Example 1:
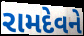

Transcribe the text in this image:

રામદેવને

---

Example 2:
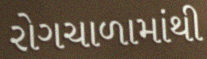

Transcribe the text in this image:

રોગચાળામાંથી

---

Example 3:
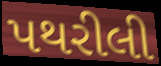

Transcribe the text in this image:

પથરીલી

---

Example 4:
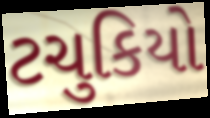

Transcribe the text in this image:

ટચુકિયો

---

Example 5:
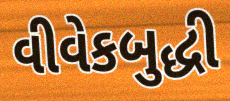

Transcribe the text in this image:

વીવેકબુદ્ધી